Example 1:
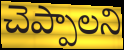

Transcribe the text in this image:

చెప్పాలని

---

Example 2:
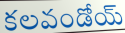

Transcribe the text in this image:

కలవండోయ్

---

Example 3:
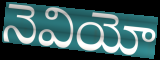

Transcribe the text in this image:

నెవియో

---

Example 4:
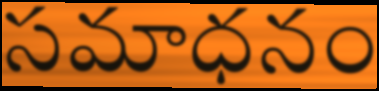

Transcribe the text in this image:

సమాధనం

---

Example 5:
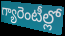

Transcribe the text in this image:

గ్యారెంటీల్లో